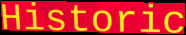
Historic